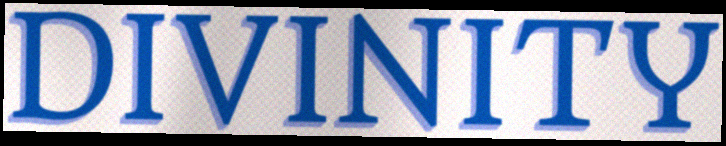
DIVINITY